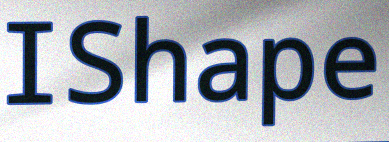
IShape